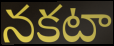
నకటా